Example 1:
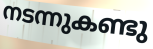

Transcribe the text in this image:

നടന്നുകണ്ടു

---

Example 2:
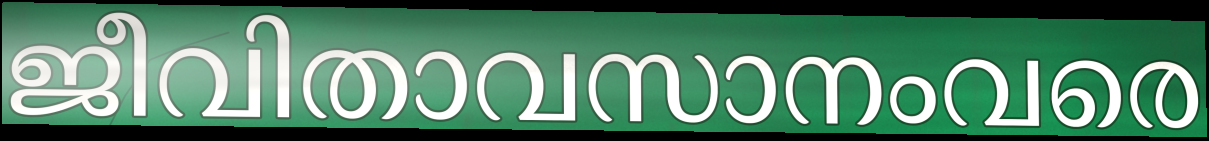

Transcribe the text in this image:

ജീവിതാവസാനംവരെ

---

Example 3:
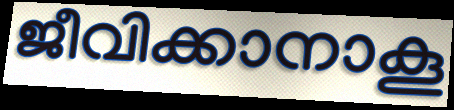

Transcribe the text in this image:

ജീവിക്കാനാകൂ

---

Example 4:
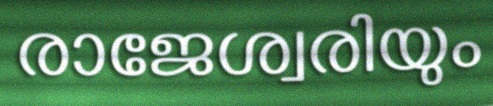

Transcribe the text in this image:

രാജേശ്വരിയും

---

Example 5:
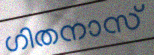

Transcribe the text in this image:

ഗിതനാസ്